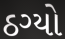
ઠગ્યો